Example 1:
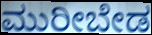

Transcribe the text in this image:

ಮುರೀಬೇಡ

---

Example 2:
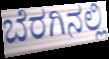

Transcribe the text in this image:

ಬೆರಗಿನಲ್ಲಿ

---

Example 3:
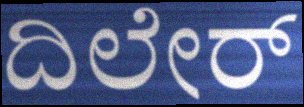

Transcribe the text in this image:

ದಿಲೇರ್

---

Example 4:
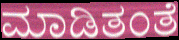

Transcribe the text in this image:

ಮಾಡಿತಂತೆ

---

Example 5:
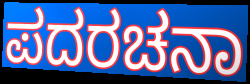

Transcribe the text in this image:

ಪದರಚನಾ